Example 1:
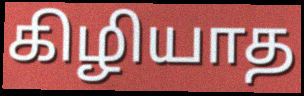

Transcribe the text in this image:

கிழியாத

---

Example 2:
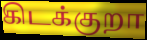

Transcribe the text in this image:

கிடக்குறா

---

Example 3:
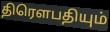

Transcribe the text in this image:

திரெளபதியும்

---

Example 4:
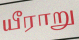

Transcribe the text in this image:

யீராறு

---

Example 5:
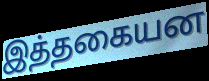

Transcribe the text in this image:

இத்தகையன